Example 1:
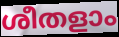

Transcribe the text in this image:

ശീതളാം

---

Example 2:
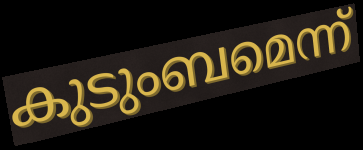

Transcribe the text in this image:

കുടുംബമെന്ന്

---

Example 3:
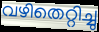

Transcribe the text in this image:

വഴിതെറ്റിച്ചു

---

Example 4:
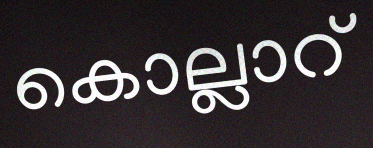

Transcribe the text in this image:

കൊല്ലാറ്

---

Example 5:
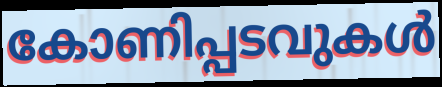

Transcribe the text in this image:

കോണിപ്പടവുകൾ